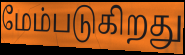
மேம்படுகிறது